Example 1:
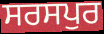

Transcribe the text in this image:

ਸਰਸਪੁਰ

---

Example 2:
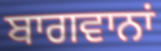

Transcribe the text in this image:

ਬਾਗਵਾਨਾਂ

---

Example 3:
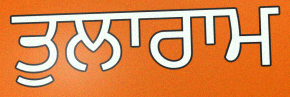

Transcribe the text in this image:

ਤੁਲਾਰਾਮ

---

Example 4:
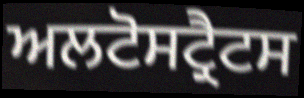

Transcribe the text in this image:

ਅਲਟੋਸਟ੍ਰੈਟਸ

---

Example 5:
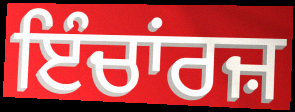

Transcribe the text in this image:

ਇੰਚਾਂਰਜ਼